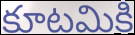
కూటమికి